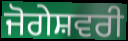
ਜੋਗੇਸ਼ਵਰੀ